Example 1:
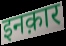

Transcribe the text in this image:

इनक़ार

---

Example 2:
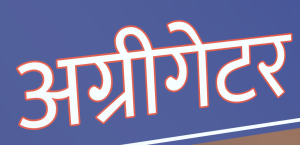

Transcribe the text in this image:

अग्रीगेटर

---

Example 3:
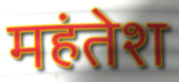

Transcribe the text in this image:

महंतेश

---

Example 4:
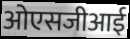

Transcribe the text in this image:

ओएसजीआई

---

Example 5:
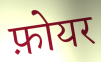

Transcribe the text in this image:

फ़ोयर